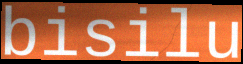
bisilu